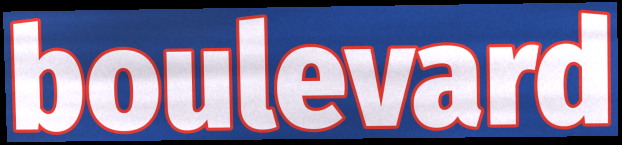
boulevard